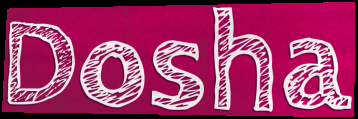
Dosha